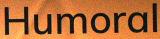
Humoral